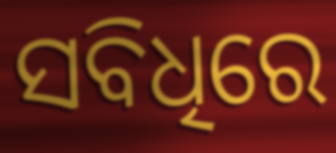
ସବିଧିରେ